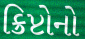
ક્રિપ્ટોનો